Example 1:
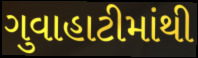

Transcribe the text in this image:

ગુવાહાટીમાંથી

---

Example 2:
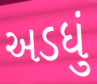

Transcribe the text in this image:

અડધું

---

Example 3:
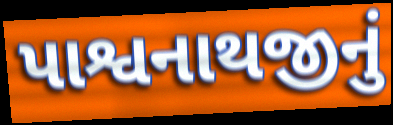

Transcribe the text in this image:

પાશ્વનાથજીનું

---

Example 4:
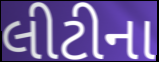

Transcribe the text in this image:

લીટીના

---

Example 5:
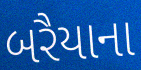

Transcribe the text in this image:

બરૈયાના